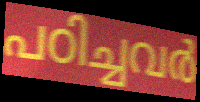
പഠിച്ചവർ